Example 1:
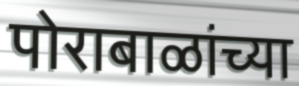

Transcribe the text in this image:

पोराबाळांच्या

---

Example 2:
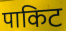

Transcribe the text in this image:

पाकिट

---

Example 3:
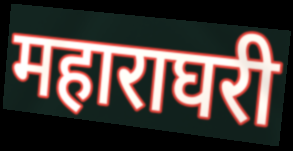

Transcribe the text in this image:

महाराघरी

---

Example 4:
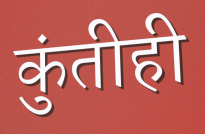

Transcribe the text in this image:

कुंतीही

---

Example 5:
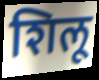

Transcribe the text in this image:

शिलू